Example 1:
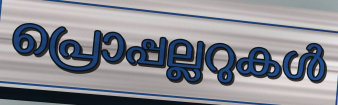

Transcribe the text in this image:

പ്രൊപ്പല്ലറുകൾ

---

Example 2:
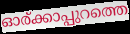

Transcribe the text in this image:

ഓര്ക്കാപ്പുറത്തെ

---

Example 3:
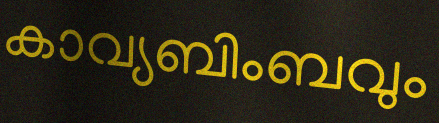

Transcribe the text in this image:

കാവ്യബിംബവും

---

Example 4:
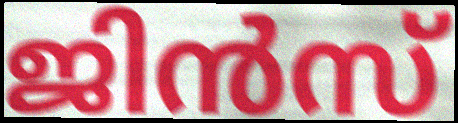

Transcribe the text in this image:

ജിൻസ്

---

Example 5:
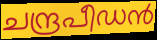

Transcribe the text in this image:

ചന്ദ്രപീഡൻ